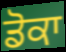
ਡੋਕਾ